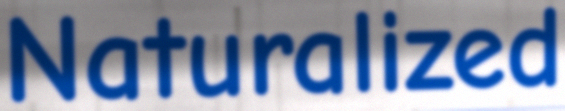
Naturalized